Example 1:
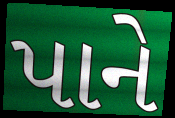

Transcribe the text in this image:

પાને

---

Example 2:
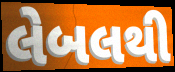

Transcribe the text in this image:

લેબલથી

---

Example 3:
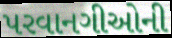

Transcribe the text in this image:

પરવાનગીઓની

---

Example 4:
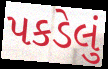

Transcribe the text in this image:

પકડેલું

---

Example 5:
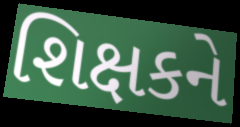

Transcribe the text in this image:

શિક્ષકને